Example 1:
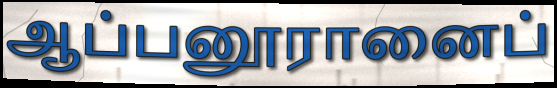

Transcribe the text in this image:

ஆப்பனூரானைப்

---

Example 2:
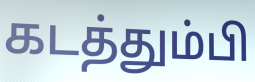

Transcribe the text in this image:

கடத்தும்பி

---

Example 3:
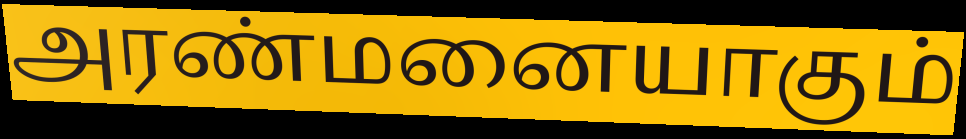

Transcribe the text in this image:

அரண்மனையாகும்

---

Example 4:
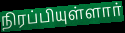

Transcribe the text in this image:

நிரப்பியுள்ளார்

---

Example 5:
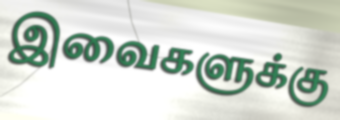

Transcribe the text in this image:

இவைகளுக்கு